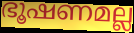
ഭൂഷണമല്ല